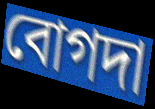
বোগদা